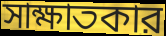
সাক্ষাতকার